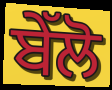
ਬੇੱਲੋ